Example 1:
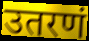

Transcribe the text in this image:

उतरणं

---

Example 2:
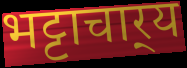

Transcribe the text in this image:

भट्टाचार्य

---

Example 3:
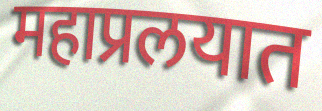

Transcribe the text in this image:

महाप्रलयात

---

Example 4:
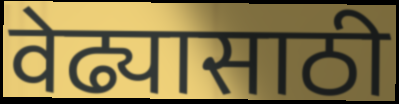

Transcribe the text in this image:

वेढ्यासाठी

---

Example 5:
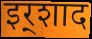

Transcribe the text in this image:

इर्शाद